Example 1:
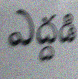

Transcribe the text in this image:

ఎద్దడి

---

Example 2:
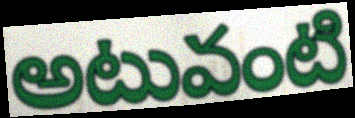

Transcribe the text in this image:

అటువంటి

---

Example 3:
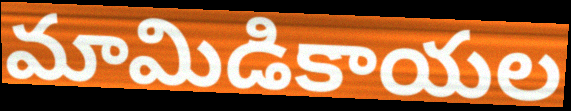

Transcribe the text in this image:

మామిడికాయల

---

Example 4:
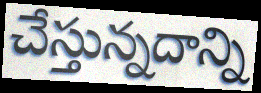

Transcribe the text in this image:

చేస్తున్నదాన్ని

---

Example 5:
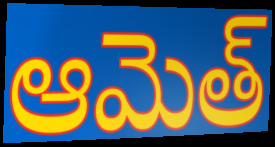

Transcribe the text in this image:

ఆమెత్